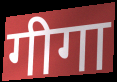
गीगा